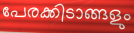
പേരക്കിടാങ്ങളും